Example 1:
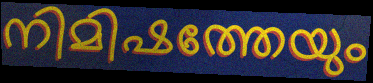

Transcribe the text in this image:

നിമിഷത്തേയും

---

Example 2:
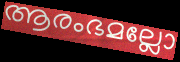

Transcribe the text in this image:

ആരംഭമല്ലോ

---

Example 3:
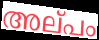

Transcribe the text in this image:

അല്‌പം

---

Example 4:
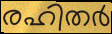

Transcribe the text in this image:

രഹിതർ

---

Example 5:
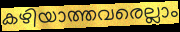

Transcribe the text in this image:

കഴിയാത്തവരെല്ലാം